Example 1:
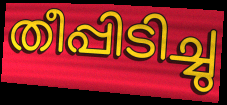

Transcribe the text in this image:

തീപ്പിടിച്ചു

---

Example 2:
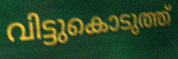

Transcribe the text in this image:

വിട്ടുകൊടുത്ത്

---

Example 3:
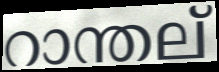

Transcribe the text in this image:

റാന്തല്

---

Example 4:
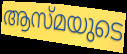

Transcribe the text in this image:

ആസ്മയുടെ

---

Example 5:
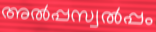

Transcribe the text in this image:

അൽപ്പസ്വൽപ്പം